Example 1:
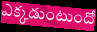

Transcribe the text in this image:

ఎక్కడుంటుందో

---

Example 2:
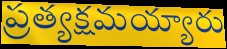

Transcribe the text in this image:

ప్రత్యక్షమయ్యారు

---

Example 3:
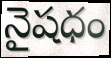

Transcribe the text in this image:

నైషధం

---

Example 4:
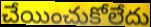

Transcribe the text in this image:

చేయించుకోలేదు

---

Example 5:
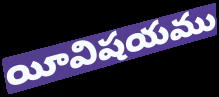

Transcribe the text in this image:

యీవిషయము